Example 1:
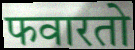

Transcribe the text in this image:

फवारतो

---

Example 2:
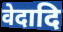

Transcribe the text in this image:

वेदादि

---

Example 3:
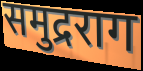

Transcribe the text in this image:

समुद्रराग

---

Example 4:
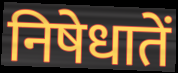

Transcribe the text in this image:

निषेधातें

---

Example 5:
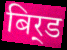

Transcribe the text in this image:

बिर्ड